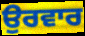
ਉਰਵਾਰ